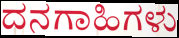
ದನಗಾಹಿಗಳು